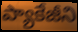
ప్యాకేజీని